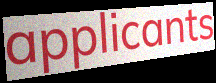
applicants